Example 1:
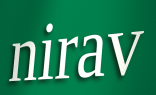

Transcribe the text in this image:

nirav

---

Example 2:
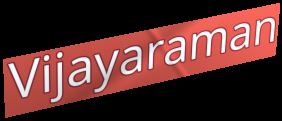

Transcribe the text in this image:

Vijayaraman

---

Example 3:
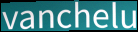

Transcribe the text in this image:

vanchelu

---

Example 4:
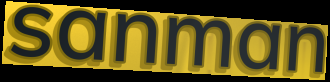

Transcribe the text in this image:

sanman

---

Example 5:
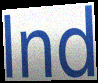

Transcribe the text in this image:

Ind